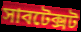
সাবটেক্সট